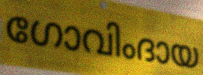
ഗോവിംദായ